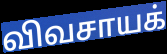
விவசாயக்